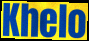
Khelo